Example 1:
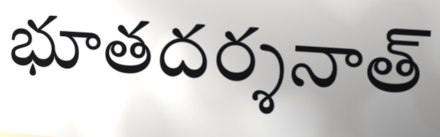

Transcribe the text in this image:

భూతదర్శనాత్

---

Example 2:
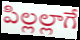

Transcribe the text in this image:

పిల్లల్లాగే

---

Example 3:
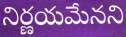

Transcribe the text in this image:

నిర్ణయమేనని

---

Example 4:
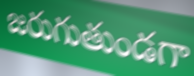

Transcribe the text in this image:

జరుగుతుండగా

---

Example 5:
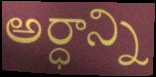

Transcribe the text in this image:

అర్ధాన్ని